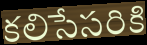
కలిసేసరికి